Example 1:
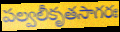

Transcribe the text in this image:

పల్వలీకృతసాగరః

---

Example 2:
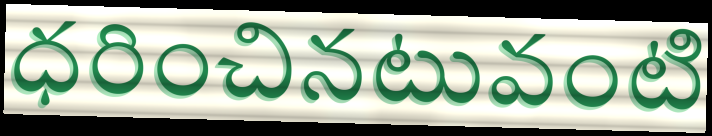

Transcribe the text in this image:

ధరించినటువంటి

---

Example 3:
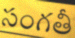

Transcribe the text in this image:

సంగతీ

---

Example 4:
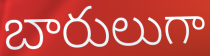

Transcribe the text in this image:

బారులుగా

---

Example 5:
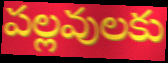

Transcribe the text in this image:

పల్లవులకు